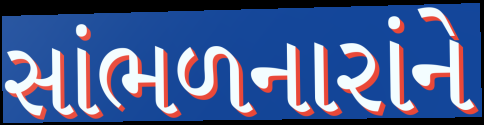
સાંભળનારાંને